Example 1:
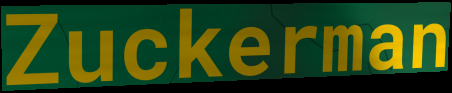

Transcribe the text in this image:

Zuckerman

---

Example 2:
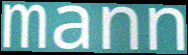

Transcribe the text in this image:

mann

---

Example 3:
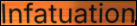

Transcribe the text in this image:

Infatuation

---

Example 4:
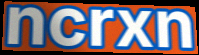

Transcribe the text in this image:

ncrxn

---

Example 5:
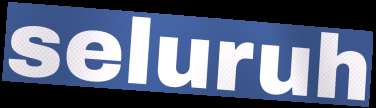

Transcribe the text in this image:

seluruh